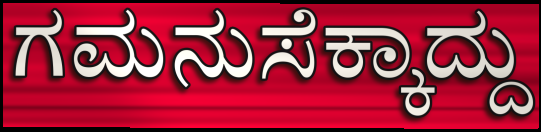
ಗಮನುಸೆಕ್ಕಾದ್ದು